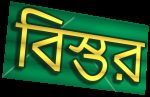
বিস্তর